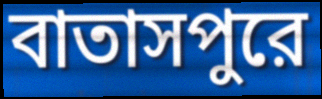
বাতাসপুরে